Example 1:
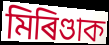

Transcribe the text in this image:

মিৰিণ্ডাক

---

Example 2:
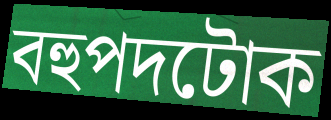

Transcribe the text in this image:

বহুপদটোক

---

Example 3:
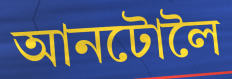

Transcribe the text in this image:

আনটোলৈ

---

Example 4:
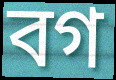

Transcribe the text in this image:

বগ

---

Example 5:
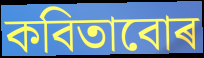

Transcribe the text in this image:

কবিতাবোৰ